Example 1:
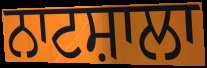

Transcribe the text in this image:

ਨਾਟਸ਼ਾਲਾ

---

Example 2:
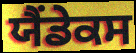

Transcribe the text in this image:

ਯੈਂਡੇਕਸ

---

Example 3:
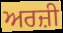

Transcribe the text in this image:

ਅਰਜ਼ੀ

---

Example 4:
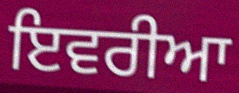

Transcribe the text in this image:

ਇਵਰੀਆ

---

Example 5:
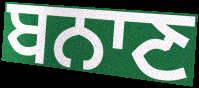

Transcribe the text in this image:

ਬਨਾਣ